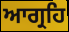
ਆਗ੍ਰਹਿ